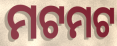
ମଟମଟ